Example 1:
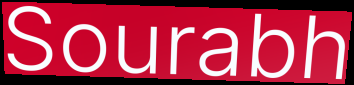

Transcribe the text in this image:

Sourabh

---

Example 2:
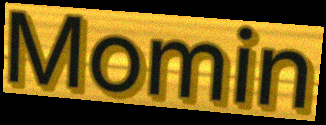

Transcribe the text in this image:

Momin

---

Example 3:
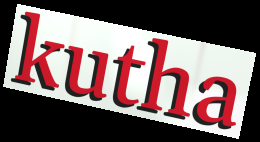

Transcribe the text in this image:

kutha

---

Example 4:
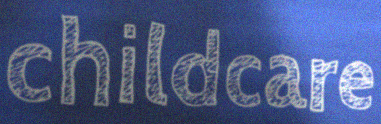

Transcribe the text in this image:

childcare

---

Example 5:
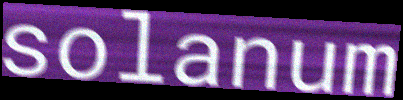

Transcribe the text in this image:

solanum